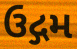
ઉદ્ગમ